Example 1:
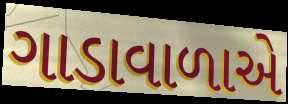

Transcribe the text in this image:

ગાડાવાળાએ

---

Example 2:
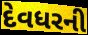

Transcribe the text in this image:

દેવધરની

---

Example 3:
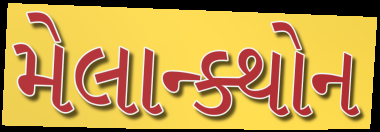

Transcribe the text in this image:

મેલાન્ક્થોન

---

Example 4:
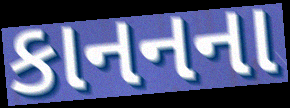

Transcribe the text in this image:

કાનનના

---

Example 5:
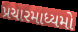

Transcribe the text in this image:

પ્રચારમાધ્યમો